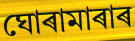
ঘোৰামাৰাৰ